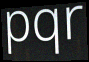
pqr